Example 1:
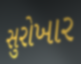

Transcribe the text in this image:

સુરોખાર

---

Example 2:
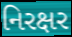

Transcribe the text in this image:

નિરક્ષર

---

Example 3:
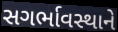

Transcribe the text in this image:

સગર્ભાવસ્થાને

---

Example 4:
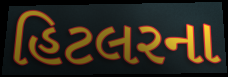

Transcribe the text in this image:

હિટલરના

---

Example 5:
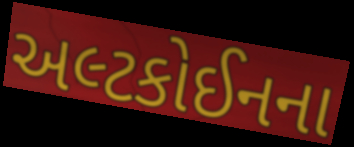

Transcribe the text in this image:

અલ્ટકોઈનના